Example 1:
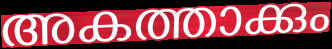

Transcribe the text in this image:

അകത്താക്കും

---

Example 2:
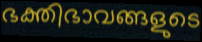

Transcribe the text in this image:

ഭക്തിഭാവങ്ങളുടെ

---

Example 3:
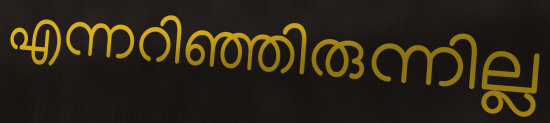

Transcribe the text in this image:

എന്നറിഞ്ഞിരുന്നില്ല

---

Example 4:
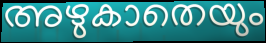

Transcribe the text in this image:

അഴുകാതെയും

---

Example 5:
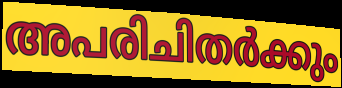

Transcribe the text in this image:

അപരിചിതർക്കും